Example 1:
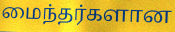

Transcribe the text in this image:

மைந்தர்களான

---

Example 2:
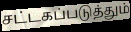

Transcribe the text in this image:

சட்டகப்படுத்தும்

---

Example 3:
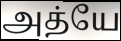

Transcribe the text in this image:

அத்யே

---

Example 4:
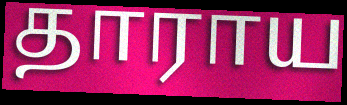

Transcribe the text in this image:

தாராய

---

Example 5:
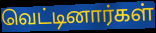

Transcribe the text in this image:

வெட்டினார்கள்